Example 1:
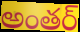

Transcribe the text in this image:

అంతర్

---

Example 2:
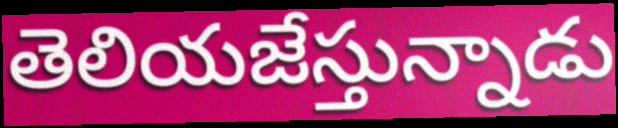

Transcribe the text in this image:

తెలియజేస్తున్నాడు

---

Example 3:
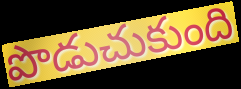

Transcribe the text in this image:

పొడుచుకుంది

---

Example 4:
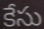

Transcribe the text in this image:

కేసు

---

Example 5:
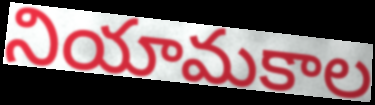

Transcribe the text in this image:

నియామకాల